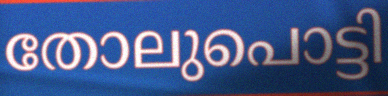
തോലുപൊട്ടി